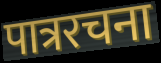
पात्ररचना